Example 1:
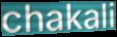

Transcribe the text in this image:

chakali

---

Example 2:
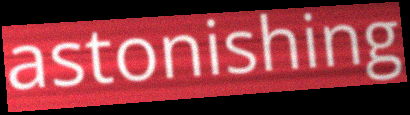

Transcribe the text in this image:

astonishing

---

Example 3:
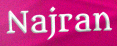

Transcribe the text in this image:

Najran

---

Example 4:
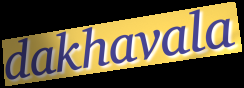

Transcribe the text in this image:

dakhavala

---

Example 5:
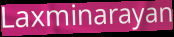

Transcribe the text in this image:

Laxminarayan